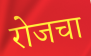
रोजचा